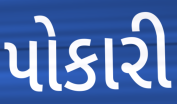
પોકારી